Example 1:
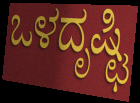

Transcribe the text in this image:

ಒಳದೃಷ್ಟಿ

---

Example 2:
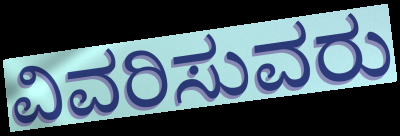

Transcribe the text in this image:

ವಿವರಿಸುವರು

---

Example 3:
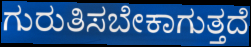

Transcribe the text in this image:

ಗುರುತಿಸಬೇಕಾಗುತ್ತದೆ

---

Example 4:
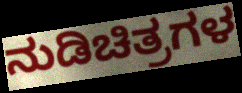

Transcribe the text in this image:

ನುಡಿಚಿತ್ರಗಳ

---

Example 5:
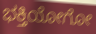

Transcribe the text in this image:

ಭಕ್ತಿಯೋಗೋ